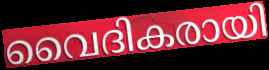
വൈദികരായി